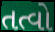
તત્વો